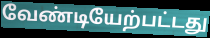
வேண்டியேற்பட்டது